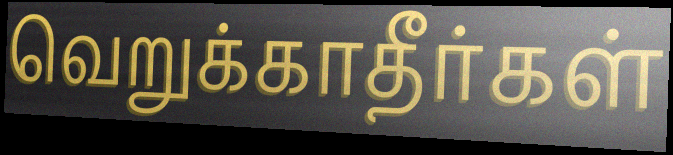
வெறுக்காதீர்கள்